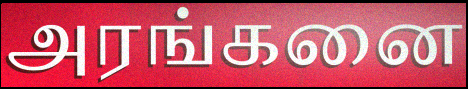
அரங்கனை